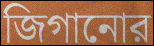
জিগানোর